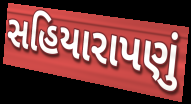
સહિયારાપણું